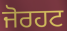
ਜੋਰਹਟ